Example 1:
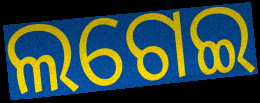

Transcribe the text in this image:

ଲଗେଇ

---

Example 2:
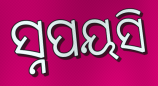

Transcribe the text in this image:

ସ୍ନପୟସି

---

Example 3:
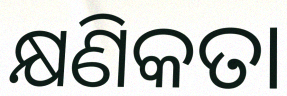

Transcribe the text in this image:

କ୍ଷଣିକତା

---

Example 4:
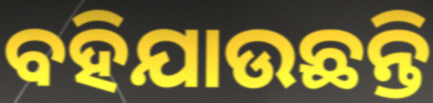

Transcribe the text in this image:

ବହିଯାଉଛନ୍ତି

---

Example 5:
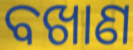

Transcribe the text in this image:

ବଖାଣ